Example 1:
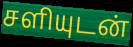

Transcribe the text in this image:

சளியுடன்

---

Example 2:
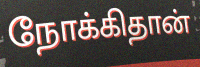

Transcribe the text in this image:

நோக்கிதான்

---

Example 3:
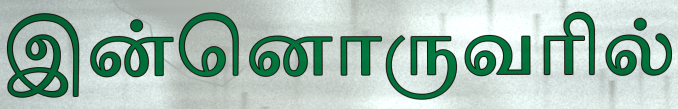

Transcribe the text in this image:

இன்னொருவரில்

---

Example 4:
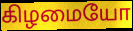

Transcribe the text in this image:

கிழமையோ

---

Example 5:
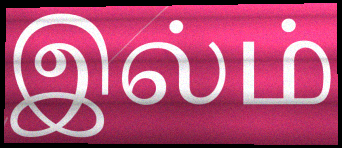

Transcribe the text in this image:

இல்ம்